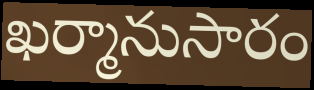
ఖర్మానుసారం